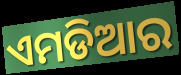
ଏମଡିଆର